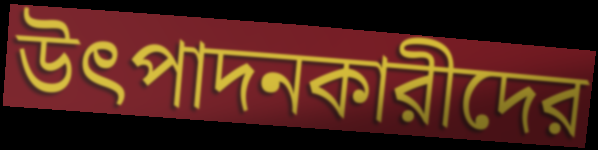
উৎপাদনকারীদের